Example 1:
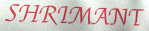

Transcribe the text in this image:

SHRIMANT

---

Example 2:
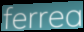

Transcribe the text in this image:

ferrea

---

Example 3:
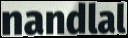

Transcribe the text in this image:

nandlal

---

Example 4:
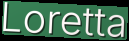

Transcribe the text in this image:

Loretta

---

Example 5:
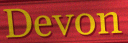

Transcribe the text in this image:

Devon